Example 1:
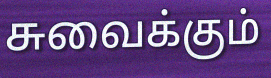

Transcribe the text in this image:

சுவைக்கும்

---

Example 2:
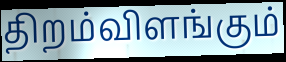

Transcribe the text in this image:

திறம்விளங்கும்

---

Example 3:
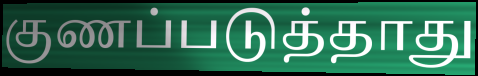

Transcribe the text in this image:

குணப்படுத்தாது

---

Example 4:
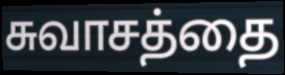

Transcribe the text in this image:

சுவாசத்தை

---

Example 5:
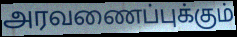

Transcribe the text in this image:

அரவணைப்புக்கும்